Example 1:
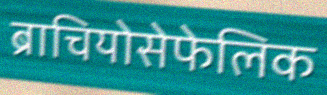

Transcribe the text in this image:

ब्राचियोसेफेलिक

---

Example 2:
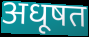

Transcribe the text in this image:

अधूषत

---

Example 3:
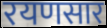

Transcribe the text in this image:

रयणसार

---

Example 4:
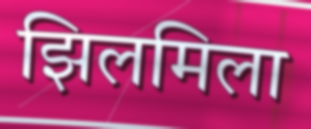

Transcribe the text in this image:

झिलमिला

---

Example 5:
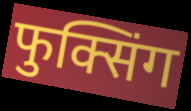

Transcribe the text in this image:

फुक्सिंग